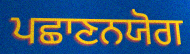
ਪਛਾਣਨਯੋਗ